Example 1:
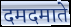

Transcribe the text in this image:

दमदमाते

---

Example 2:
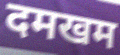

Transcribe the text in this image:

दमखम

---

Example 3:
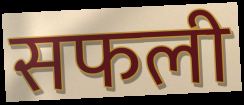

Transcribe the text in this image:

सफली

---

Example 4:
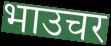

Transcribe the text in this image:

भाउचर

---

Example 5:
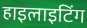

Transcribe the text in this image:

हाइलाइटिंग